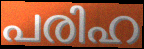
പരിഹ